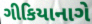
ગીકિયાનાગે